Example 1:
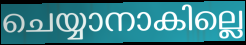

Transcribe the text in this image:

ചെയ്യാനാകില്ലെ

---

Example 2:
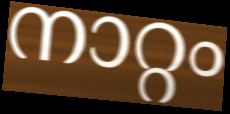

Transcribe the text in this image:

നാറ്റം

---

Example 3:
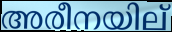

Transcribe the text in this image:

അരീനയില്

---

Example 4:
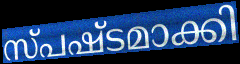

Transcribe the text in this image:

സ്പഷ്ടമാക്കി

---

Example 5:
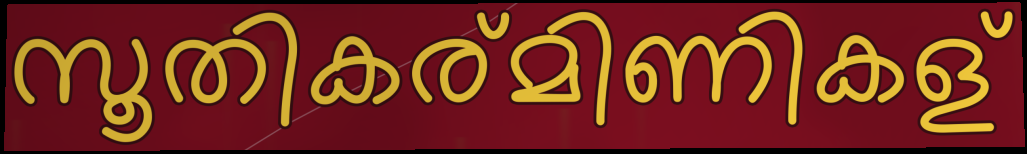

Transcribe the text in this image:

സൂതികര്മിണികള്